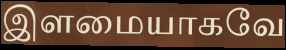
இளமையாகவே